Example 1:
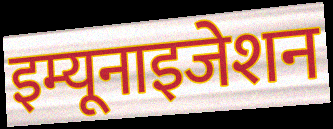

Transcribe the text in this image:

इम्यूनाइजेशन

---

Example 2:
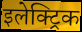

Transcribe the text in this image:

इलेक्ट्रिक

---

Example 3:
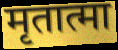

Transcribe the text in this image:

मृतात्मा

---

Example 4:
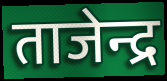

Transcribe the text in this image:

ताजेन्द्र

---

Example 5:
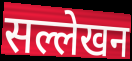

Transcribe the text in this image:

सल्लेखन